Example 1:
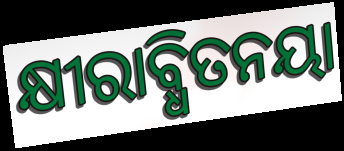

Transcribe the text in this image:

କ୍ଷୀରାବ୍ଧିତନୟା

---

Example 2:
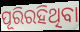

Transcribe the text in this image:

ପୂରିରହିଥିବା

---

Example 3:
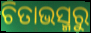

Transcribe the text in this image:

ଚିତାଭସ୍ମରୁ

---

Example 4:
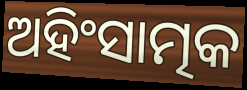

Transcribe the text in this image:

ଅହିଂସାତ୍ମକ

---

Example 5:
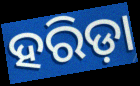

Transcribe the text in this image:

ହରିଡ଼ା